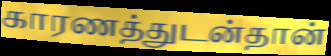
காரணத்துடன்தான்